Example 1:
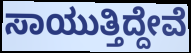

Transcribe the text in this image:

ಸಾಯುತ್ತಿದ್ದೇವೆ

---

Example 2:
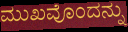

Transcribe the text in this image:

ಮುಖವೊಂದನ್ನು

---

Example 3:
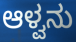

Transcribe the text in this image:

ಆಳ್ವನು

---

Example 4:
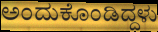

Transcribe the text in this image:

ಅಂದುಕೊಂಡಿದ್ದಳು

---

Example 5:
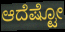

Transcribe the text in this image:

ಆದೆಷ್ಟೋ